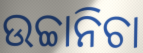
ଉଚ୍ଚାନିଚା